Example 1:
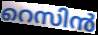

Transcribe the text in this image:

റെസിൻ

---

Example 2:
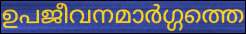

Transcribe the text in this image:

ഉപജീവനമാർഗ്ഗത്തെ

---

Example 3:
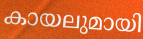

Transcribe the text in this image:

കായലുമായി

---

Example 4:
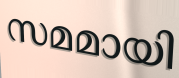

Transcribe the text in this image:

സമമായി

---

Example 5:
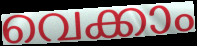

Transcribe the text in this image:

വെക്കാം